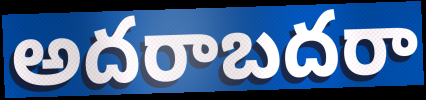
అదరాబదరా